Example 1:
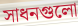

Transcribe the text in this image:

সাধনগুলো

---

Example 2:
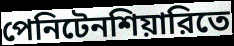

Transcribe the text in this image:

পেনিটেনশিয়ারিতে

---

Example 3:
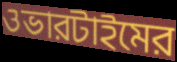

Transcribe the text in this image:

ওভারটাইমের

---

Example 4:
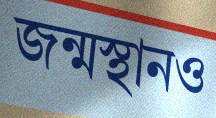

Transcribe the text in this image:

জন্মস্থানও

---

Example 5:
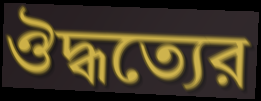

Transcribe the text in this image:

ঔদ্ধত্যের